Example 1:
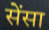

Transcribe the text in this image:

सेंसा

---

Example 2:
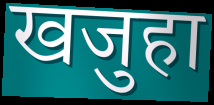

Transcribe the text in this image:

खजुहा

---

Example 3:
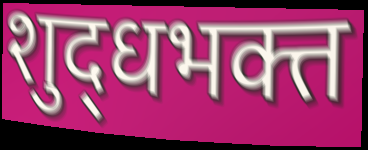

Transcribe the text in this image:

शुद्धभक्त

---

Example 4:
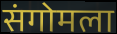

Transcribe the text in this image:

संगोमला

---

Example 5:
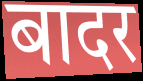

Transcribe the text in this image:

बादर